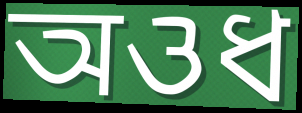
অওধ